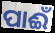
ପାଈଁ